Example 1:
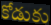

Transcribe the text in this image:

కోడుకు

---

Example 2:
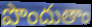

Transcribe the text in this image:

పొందుతాం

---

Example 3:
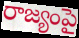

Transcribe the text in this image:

రాజ్యంపై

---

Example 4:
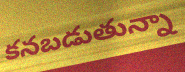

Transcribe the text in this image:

కనబడుతున్నా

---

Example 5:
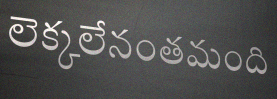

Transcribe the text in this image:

లెక్కలేనంతమంది